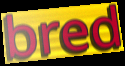
bred